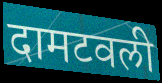
दामटवली